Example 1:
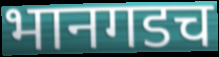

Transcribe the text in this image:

भानगडच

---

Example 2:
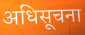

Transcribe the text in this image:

अधिसूचना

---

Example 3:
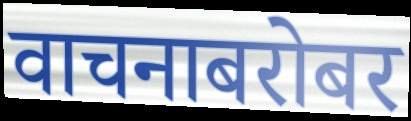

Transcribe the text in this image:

वाचनाबरोबर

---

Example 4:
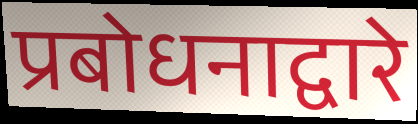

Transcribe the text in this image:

प्रबोधनाद्वारे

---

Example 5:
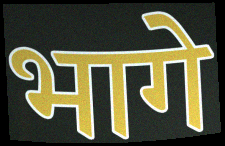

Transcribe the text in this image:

भागे